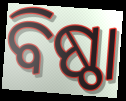
ବିଷ୍ଠା